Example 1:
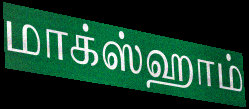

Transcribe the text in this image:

மாக்ஸ்ஹாம்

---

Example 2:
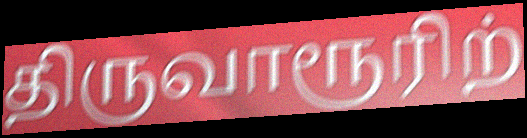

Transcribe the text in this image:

திருவாரூரிற்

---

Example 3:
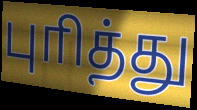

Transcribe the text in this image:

புரித்து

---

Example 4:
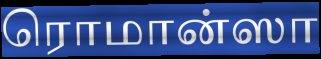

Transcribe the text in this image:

ரொமான்ஸா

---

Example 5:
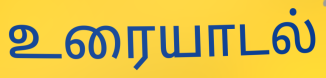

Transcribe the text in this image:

உரையாடல்